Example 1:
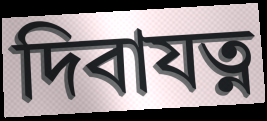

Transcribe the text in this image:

দিবাযত্ন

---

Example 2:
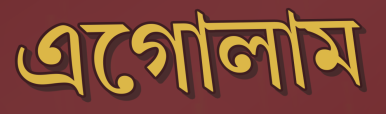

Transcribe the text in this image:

এগোলাম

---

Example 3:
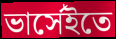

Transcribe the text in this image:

ভার্সেইতে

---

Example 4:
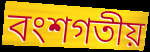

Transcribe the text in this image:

বংশগতীয়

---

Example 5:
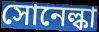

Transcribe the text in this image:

সোনেল্কা